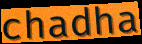
chadha